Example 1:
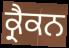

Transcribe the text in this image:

ਕ੍ਰੈਕਨ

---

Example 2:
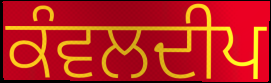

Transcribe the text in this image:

ਕੰਵਲਦੀਪ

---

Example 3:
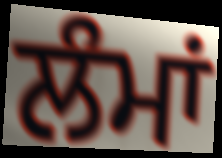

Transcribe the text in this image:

ਲੰਮਾਂ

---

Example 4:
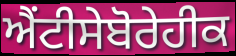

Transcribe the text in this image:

ਐਂਟੀਸੇਬੋਰੇਹੀਕ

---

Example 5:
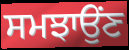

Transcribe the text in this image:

ਸਮਝਾਉਂਣ